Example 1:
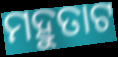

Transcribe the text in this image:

ମହୁତାଟ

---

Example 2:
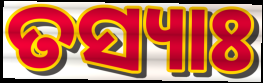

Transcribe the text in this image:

ତସ୍ୟାଃ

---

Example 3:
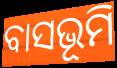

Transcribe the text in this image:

ବାସଭୂମି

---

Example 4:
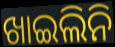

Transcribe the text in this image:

ଖାଇଲିନି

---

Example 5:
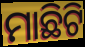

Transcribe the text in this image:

ମାଛିଟି